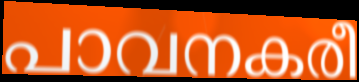
പാവനകരീ